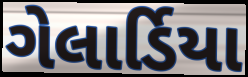
ગેલાર્ડિયા